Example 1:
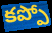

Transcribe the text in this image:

కప్పో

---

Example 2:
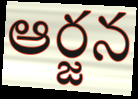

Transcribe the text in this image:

ఆర్జన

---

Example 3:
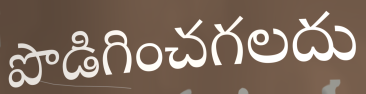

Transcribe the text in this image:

పొడిగించగలదు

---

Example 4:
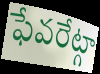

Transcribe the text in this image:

ఫేవరేట్గా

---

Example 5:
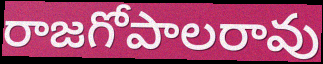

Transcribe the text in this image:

రాజగోపాలరావు